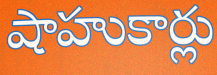
షాహుకార్లు